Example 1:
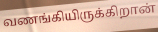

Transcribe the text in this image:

வணங்கியிருக்கிறான்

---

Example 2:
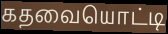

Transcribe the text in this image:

கதவையொட்டி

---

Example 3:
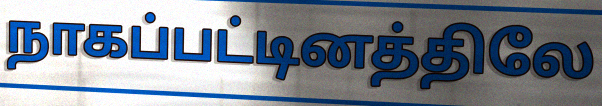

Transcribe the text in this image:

நாகப்பட்டினத்திலே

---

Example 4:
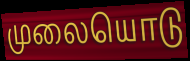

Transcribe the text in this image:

முலையொடு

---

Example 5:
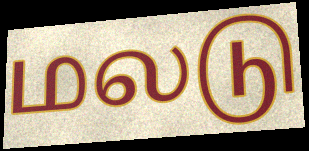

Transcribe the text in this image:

மலடு